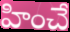
హించే